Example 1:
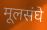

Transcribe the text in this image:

मूलसंघे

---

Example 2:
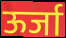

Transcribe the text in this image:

ऊर्जा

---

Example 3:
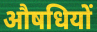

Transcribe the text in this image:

औषधियों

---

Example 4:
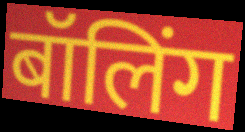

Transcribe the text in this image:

बॉलिंग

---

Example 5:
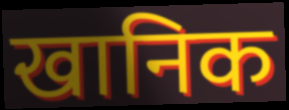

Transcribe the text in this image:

खानिक